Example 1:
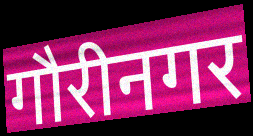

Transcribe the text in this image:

गौरीनगर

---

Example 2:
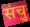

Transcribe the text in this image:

संचु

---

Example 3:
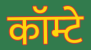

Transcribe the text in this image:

कॉम्टे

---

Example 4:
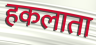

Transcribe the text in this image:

हकलाता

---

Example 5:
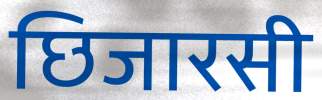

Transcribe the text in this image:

छिजारसी